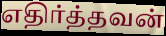
எதிர்த்தவன்